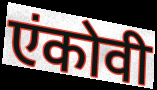
एंकोवी